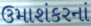
ઉમાશંકરનાં